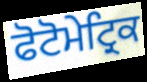
ਫੋਟੋਮੇਟ੍ਰਿਕ